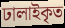
ঢালাইকৃত